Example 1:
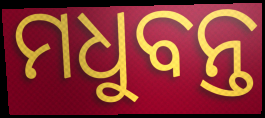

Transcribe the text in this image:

ମଧୁବନ୍ତ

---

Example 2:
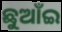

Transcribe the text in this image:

ଛୁଆଁଇ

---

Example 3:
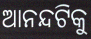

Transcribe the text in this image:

ଆନନ୍ଦଟିକୁ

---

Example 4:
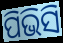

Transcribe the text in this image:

ପିଭିସି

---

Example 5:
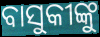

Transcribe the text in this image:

ବାସୁକୀଙ୍କୁ